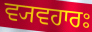
ਵ੍ਯਵਹਾਰਃ